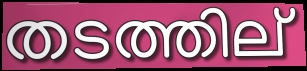
തടത്തില്